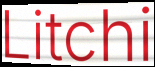
Litchi